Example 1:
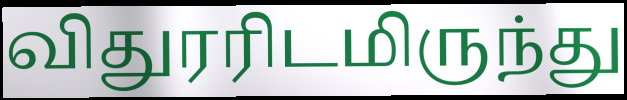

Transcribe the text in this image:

விதுரரிடமிருந்து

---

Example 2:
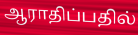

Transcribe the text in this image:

ஆராதிப்பதில்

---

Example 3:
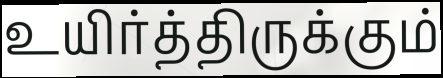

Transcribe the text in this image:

உயிர்த்திருக்கும்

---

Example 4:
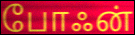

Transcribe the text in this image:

போஃன்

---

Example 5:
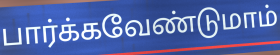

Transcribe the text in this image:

பார்க்கவேண்டுமாம்